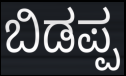
ಬಿಡಪ್ಪ